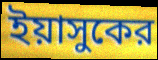
ইয়াসুকের